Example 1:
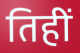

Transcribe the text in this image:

तिहीं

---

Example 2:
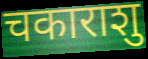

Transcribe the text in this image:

चकाराशु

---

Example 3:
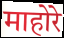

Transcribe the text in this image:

माहोरे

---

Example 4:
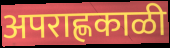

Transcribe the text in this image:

अपराह्णकाळी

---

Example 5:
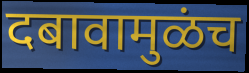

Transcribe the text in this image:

दबावामुळंच